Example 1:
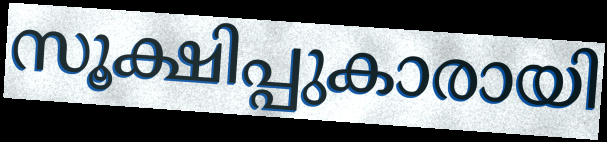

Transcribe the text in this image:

സൂക്ഷിപ്പുകാരായി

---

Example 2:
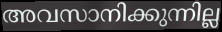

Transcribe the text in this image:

അവസാനിക്കുന്നില്ല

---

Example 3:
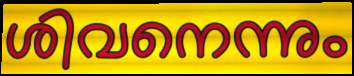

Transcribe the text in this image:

ശിവനെന്നും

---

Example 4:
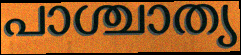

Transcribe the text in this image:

പാശ്ചാത്യ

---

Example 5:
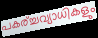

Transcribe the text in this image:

പകര്ച്ചവ്യാധികളും